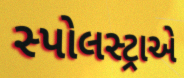
સ્પોલસ્ટ્રાએ